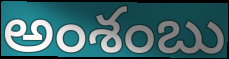
అంశంబు